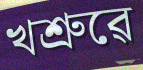
খশ্ৰুৱে